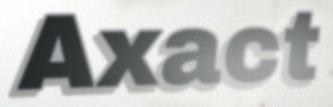
Axact